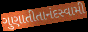
ગુણાતીતાનંદસ્વામી